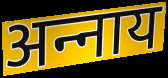
अन्नाय